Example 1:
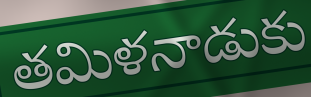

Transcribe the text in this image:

తమిళనాడుకు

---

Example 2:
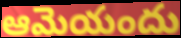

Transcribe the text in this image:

ఆమెయందు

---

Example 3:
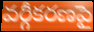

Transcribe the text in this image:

వర్గీకరణపై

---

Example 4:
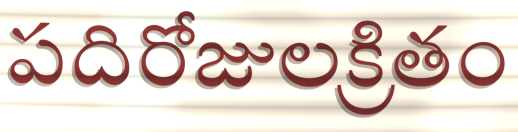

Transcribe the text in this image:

పదిరోజులక్రితం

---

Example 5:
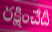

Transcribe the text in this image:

రక్షించేదీ